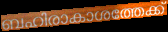
ബഹിരാകാശത്തേക്ക്